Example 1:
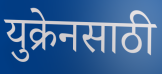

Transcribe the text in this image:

युक्रेनसाठी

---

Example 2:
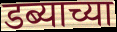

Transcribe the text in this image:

डब्याच्या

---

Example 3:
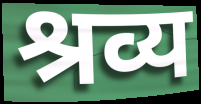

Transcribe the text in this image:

श्रव्य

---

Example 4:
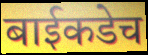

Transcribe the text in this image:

बाईकडेच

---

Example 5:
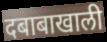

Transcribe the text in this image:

दबाबाखाली